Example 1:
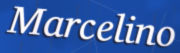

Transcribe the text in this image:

Marcelino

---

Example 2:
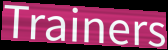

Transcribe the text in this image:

Trainers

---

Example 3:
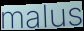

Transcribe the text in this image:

malus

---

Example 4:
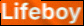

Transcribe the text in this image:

Lifeboy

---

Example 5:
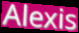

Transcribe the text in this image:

Alexis